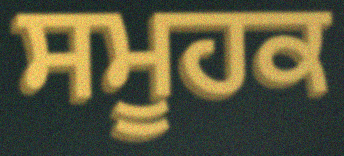
ਸਮੂਹਕ